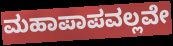
ಮಹಾಪಾಪವಲ್ಲವೇ